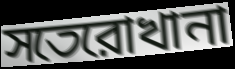
সতেরোখানা